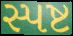
સ્પષ્ટ